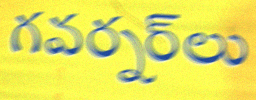
గవర్నర్‌లు